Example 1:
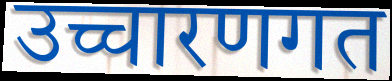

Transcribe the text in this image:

उच्चारणगत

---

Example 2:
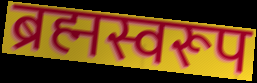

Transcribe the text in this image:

ब्रह्मस्वरूप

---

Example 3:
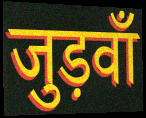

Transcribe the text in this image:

जुड़वाँ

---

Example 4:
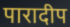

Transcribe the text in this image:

पारादीप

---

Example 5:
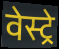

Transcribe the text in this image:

वेस्ट्रे